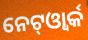
ନେଟ୍ଓ୍ବାର୍କ